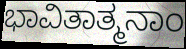
ಭಾವಿತಾತ್ಮನಾಂ